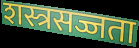
शस्त्रसज्जता